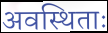
अवस्थिताः